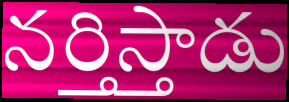
నర్తిస్తాడు